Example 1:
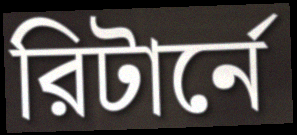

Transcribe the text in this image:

রিটার্নে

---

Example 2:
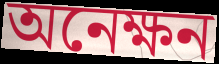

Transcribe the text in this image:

অনেক্ষন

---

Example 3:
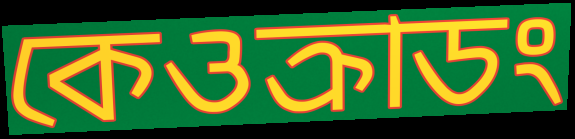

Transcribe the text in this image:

কেওক্রাডং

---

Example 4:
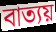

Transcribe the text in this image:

বাত্যয়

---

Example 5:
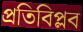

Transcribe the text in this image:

প্রতিবিপ্লব